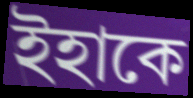
ইহাকে